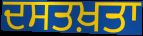
ਦਸਤਖ਼ਤਾ